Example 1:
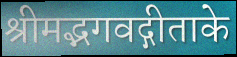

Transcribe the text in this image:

श्रीमद्भगवद्गीताके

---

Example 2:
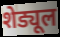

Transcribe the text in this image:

शेड्यूल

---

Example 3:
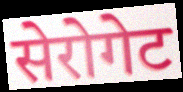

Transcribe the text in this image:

सेरोगेट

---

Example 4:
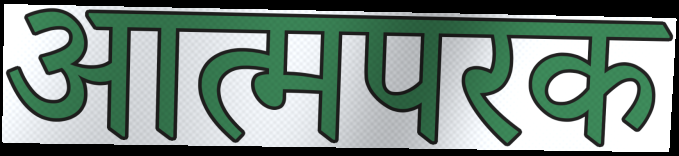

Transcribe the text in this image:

आत्मपरक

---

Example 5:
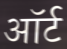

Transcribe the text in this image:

ऑर्ट